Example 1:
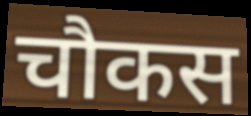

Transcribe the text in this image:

चौकस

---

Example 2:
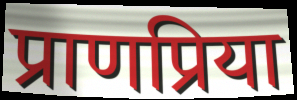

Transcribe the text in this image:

प्राणप्रिया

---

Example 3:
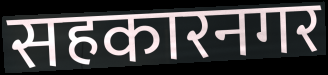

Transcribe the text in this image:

सहकारनगर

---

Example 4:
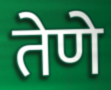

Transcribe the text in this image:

तेणे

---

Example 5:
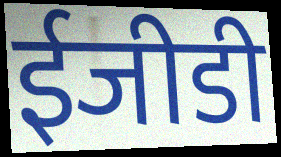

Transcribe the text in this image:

ईजीडी